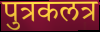
पुत्रकलत्र